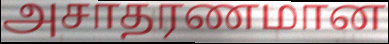
அசாதரணமான